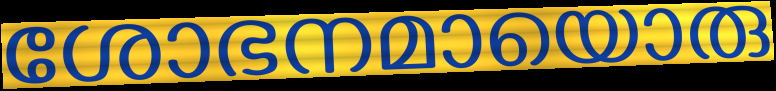
ശോഭനമായൊരു